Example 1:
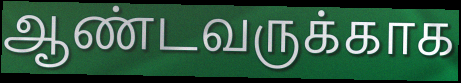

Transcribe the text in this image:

ஆண்டவருக்காக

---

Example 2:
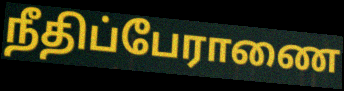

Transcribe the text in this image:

நீதிப்பேராணை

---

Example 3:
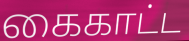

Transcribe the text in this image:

கைகாட்ட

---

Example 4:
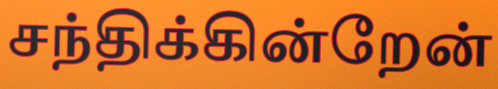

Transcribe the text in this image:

சந்திக்கின்றேன்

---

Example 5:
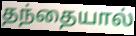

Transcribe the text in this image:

தந்தையால்